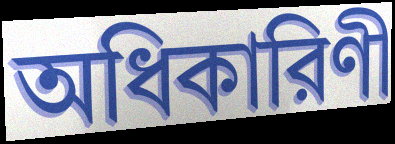
অধিকারিণী